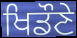
ਖਿਡੌਣੇ